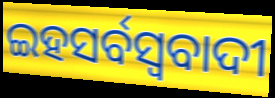
ଇହସର୍ବସ୍ୱବାଦୀ